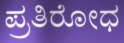
ಪ್ರತಿರೋಧ